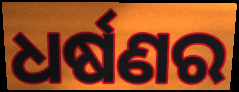
ଧର୍ଷଣର